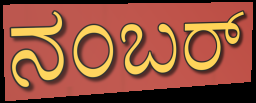
ನಂಬರ್